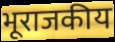
भूराजकीय